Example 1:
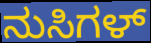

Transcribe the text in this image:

ನುಸಿಗಳ್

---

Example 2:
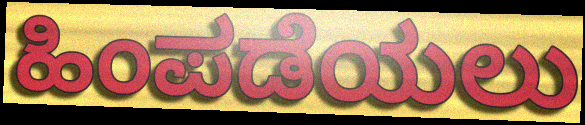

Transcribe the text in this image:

ಹಿಂಪಡೆಯಲು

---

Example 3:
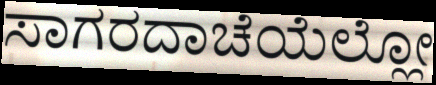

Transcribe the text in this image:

ಸಾಗರದಾಚೆಯೆಲ್ಲೋ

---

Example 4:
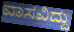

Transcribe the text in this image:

ವಾಸವಿದ್ದು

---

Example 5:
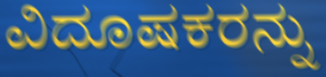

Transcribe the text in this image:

ವಿದೂಷಕರನ್ನು